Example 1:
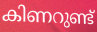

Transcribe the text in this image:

കിണറുണ്ട്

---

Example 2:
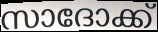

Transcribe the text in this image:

സാദോക്ക്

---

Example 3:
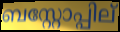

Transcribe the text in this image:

ബസ്റ്റോപ്പില്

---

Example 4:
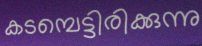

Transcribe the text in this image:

കടമ്പെട്ടിരിക്കുന്നു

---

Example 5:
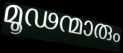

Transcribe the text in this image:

മൂഢന്മാരും